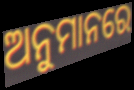
ଅନୁମାନରେ